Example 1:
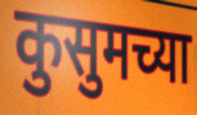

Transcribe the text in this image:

कुसुमच्या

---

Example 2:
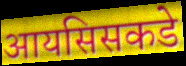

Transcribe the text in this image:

आयसिसकडे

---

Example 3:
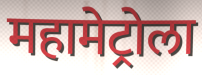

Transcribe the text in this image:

महामेट्रोला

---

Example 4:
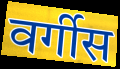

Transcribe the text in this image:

वर्गीस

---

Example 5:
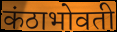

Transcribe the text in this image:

कंठाभोवती